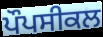
ਪੌਪਸੀਕਲ